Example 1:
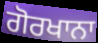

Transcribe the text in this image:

ਗੋਰਖਾਨਾ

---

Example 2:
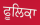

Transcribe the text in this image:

ਫੂਲਿਕਾ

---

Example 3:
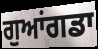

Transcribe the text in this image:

ਗੁਆਂਗਡਾ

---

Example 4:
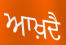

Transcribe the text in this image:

ਆਖ਼ਦੈ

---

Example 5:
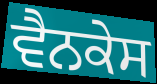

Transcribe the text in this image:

ਵੈਨਕੇਸ